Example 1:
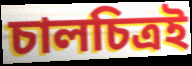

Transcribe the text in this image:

চালচিত্রই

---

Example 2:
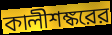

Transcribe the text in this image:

কালীশঙ্করের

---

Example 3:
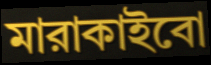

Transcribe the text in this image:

মারাকাইবো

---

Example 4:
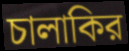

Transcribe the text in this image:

চালাকির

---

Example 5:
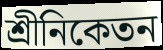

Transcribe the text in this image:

শ্রীনিকেতন